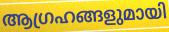
ആഗ്രഹങ്ങളുമായി